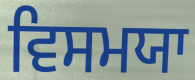
ਵਿਸਮਯਾ